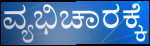
ವ್ಯಭಿಚಾರಕ್ಕೆ